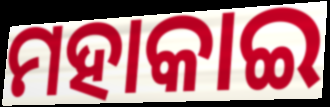
ମହାକାଇ